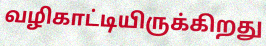
வழிகாட்டியிருக்கிறது